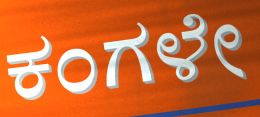
ಕಂಗಳೇ